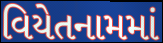
વિયેતનામમાં